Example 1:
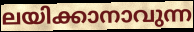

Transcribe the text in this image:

ലയിക്കാനാവുന്ന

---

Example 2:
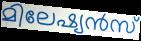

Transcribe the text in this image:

മിലേഷ്യൻസ്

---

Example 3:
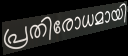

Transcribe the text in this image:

പ്രതിരോധമായി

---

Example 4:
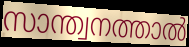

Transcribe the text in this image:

സാന്ത്വനത്താൽ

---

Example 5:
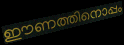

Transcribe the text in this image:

ഈണത്തിനൊപ്പം